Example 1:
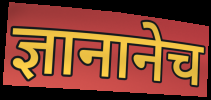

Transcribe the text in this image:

ज्ञानानेच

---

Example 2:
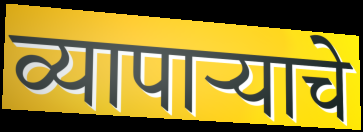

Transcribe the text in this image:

व्यापाऱ्याचे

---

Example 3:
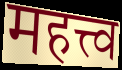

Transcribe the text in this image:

महत्त्व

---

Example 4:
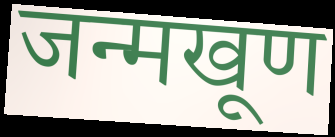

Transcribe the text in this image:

जन्मखूण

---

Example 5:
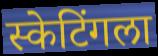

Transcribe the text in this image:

स्केटिंगला